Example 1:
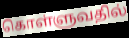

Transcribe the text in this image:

கொள்ளுவதில்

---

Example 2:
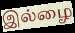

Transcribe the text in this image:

இல்ழை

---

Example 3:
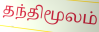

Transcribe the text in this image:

தந்திமூலம்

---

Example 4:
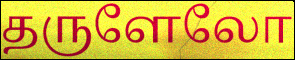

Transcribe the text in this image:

தருளேலோ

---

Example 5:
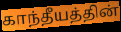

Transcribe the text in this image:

காந்தீயத்தின்